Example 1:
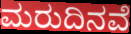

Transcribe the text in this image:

ಮರುದಿನವೆ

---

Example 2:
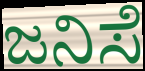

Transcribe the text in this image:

ಜನಿಸೆ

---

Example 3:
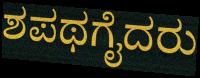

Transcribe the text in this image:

ಶಪಥಗೈದರು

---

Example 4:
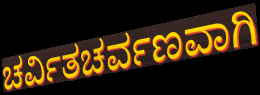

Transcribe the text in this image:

ಚರ್ವಿತಚರ್ವಣವಾಗಿ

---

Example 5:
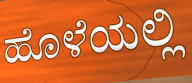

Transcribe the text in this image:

ಹೊಳೆಯಲ್ಲಿ